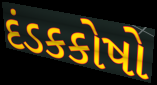
દંડકકોષો